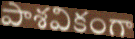
పాశవికంగా